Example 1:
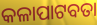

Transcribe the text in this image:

କଳାପାଟବତା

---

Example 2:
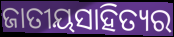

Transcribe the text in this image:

ଜାତୀୟସାହିତ୍ୟର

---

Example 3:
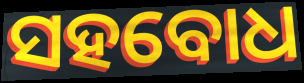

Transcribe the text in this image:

ସହବୋଧ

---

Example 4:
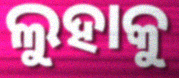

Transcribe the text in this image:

ଲୁହାକୁ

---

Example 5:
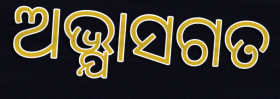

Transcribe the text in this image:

ଅଭ୍ଯାସଗତ